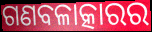
ଗଣବଳାତ୍କାରର